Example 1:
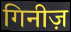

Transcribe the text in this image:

गिनीज़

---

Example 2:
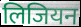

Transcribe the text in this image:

लिजियन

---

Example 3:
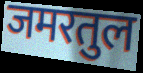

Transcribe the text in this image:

जमरतुल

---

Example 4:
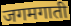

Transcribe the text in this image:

जगमगाती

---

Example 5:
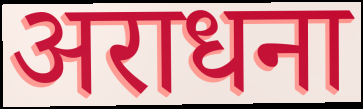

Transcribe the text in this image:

अराधना